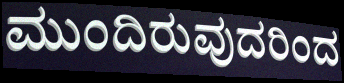
ಮುಂದಿರುವುದರಿಂದ